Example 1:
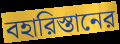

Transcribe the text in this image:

বহারিস্তানের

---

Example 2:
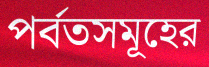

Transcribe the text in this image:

পর্বতসমূহের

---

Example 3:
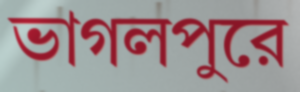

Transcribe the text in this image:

ভাগলপুরে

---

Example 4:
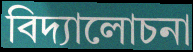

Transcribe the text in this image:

বিদ্যালোচনা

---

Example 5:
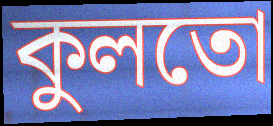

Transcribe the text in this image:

কুলতো